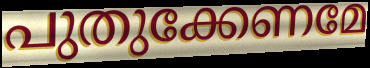
പുതുക്കേണമേ